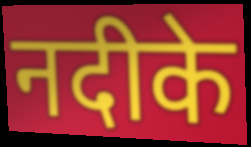
नदीके